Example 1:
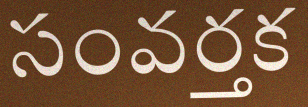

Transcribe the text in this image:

సంవర్తక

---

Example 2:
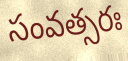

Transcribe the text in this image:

సంవత్సరః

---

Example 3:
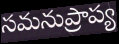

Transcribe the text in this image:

సమనుప్రాప్య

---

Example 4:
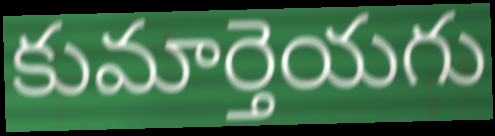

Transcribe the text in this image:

కుమార్తెయగు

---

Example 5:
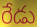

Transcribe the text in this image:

రేడు